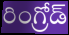
రింగ్రోడ్